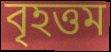
বৃহত্তম